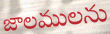
జాలములను